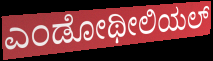
ಎಂಡೋಥೀಲಿಯಲ್